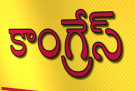
కాంగ్రేస్